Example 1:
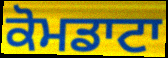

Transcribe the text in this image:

ਕੋਮਡਾਟਾ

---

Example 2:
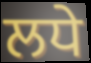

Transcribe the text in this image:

ਲਧੇ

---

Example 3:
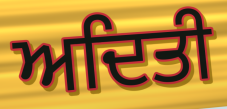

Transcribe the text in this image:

ਅਦਿਤੀ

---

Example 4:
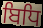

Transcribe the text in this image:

ਬਿਧਿ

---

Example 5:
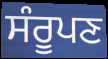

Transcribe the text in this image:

ਸੰਰੂਪਣ